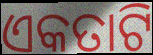
ଏକତାଟି